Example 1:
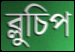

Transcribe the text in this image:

ব্লুচিপ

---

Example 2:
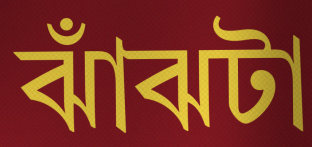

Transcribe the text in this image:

ঝাঁঝটা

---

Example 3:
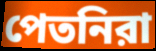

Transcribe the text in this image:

পেতনিরা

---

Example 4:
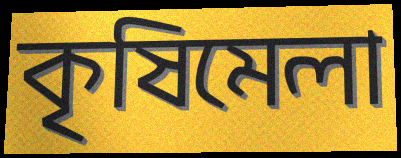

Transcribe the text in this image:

কৃষিমেলা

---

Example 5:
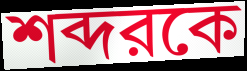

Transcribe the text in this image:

শব্দরকে